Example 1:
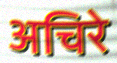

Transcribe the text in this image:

अचिरे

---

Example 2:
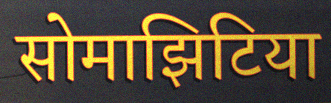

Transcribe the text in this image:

सोमाझिटिया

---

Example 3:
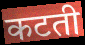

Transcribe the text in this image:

कटती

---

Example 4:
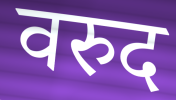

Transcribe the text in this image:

वरुद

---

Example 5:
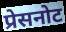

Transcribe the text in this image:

प्रेसनोट